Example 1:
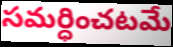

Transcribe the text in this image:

సమర్ధించటమే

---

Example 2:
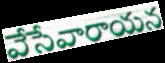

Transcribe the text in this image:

వేసేవారాయన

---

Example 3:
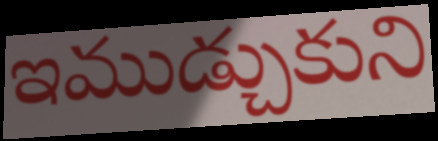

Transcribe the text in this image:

ఇముడ్చుకుని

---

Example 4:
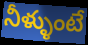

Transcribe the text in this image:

నీళ్ళుంటే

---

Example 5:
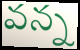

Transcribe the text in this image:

వన్న